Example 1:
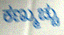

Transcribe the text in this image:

ಕಣ್ಮುಚ್ಚು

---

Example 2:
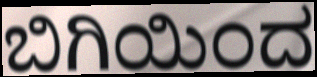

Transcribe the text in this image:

ಬಿಗಿಯಿಂದ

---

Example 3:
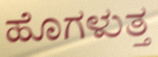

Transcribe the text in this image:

ಹೊಗಳುತ್ತ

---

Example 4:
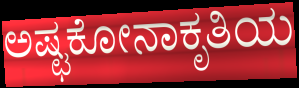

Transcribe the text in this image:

ಅಷ್ಟಕೋನಾಕೃತಿಯ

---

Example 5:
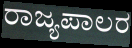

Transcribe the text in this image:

ರಾಜ್ಯಪಾಲರ